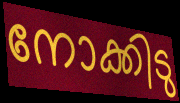
നോക്കിടു